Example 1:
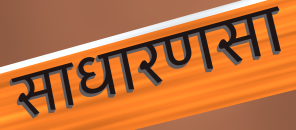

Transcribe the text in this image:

साधारणसा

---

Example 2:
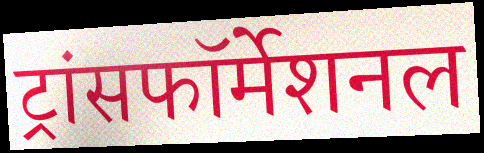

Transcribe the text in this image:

ट्रांसफॉर्मेशनल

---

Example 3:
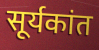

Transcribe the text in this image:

सूर्यकांत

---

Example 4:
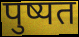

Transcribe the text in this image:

पुष्यत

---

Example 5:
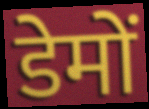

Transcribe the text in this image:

डेमों